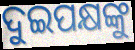
ଦୁଇପକ୍ଷଙ୍କୁ